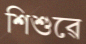
শিশুৱে